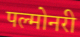
पल्मोनरी